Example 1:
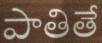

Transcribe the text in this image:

పాతితే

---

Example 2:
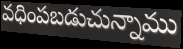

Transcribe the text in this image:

వధింపబడుచున్నాము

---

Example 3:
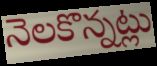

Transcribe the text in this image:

నెలకొన్నట్లు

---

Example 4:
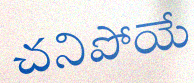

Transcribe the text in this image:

చనిపోయే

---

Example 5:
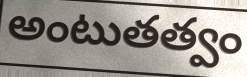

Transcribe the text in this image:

అంటుతత్వం